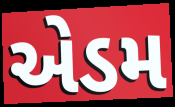
એડમ